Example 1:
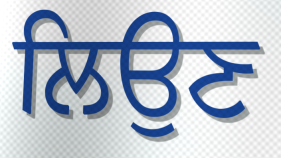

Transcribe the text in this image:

ਲਿਉਣ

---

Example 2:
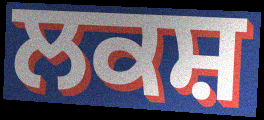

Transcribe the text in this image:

ਲਕਸ਼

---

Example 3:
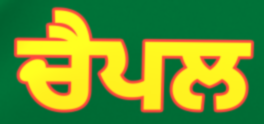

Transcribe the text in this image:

ਚੈਪਲ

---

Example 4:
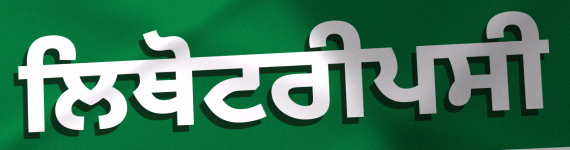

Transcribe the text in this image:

ਲਿਥੋਟਰੀਪਸੀ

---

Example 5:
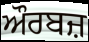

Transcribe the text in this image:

ਔਰਬਜ਼